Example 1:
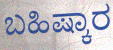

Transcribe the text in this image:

ಬಹಿಷ್ಕಾರ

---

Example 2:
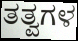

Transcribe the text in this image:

ತತ್ವಗಳ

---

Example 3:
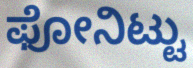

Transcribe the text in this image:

ಫೋನಿಟ್ಟು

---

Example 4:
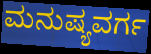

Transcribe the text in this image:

ಮನುಷ್ಯವರ್ಗ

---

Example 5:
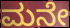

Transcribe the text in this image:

ಮನೇ